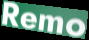
Remo